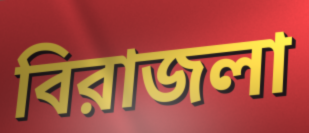
বিরাজলা